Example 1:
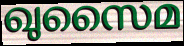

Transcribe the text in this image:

ഖുസൈമ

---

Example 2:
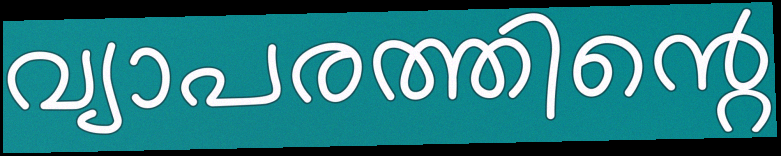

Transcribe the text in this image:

വ്യാപരത്തിന്റെ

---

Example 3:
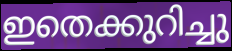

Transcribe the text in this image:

ഇതെക്കുറിച്ചു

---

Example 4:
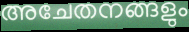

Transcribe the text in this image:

അചേതനങ്ങളും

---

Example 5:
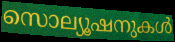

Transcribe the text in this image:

സൊല്യൂഷനുകൾ